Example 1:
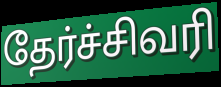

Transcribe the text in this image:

தேர்ச்சிவரி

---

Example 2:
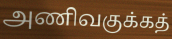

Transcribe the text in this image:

அணிவகுக்கத்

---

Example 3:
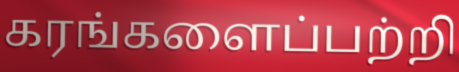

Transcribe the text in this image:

கரங்களைப்பற்றி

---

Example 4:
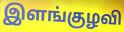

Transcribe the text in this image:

இளங்குழவி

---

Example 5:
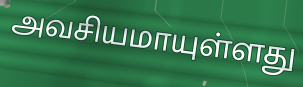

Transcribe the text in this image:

அவசியமாயுள்ளது